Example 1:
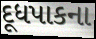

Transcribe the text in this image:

દૂધપાકના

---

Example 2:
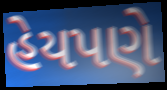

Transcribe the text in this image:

હેયપણે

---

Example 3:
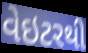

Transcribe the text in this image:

વેઇટરથી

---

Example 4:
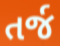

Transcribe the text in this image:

તર્જ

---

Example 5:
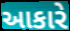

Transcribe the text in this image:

આકારે